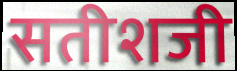
सतीशजी